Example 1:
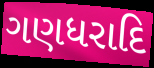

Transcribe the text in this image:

ગણધરાદિ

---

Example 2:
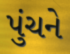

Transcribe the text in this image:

પુંચને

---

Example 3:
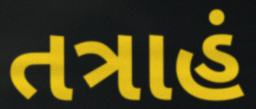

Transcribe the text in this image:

તત્રાહં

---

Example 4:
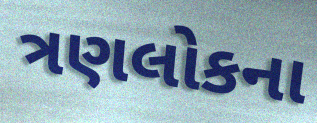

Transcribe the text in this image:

ત્રણલોકના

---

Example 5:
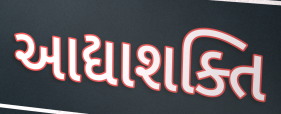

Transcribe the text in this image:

આદ્યાશક્તિ